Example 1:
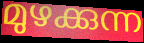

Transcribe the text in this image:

മുഴക്കുന്ന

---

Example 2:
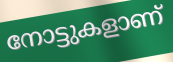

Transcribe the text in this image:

നോട്ടുകളാണ്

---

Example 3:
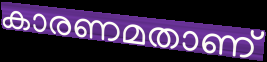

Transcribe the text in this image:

കാരണമതാണ്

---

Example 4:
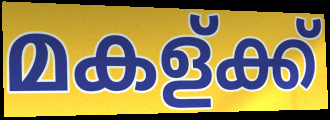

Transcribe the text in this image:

മകള്ക്ക്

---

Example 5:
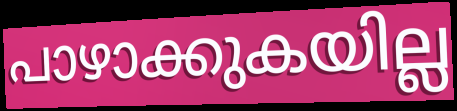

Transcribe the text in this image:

പാഴാക്കുകയില്ല